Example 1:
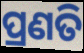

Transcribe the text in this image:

ପ୍ରଣତି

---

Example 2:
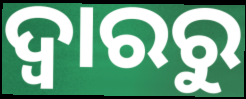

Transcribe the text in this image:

ଦ୍ଵାରରୁ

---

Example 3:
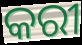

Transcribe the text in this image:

କରୀ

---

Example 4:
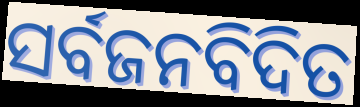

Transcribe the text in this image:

ସର୍ବଜନବିଦିତ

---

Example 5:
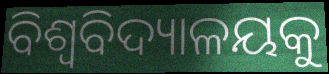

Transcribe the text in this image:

ବିଶ୍ବବିଦ୍ୟାଳୟକୁ